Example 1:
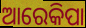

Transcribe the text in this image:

ଆରେକିପା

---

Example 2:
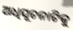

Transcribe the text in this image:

ଅଧିସୂଚନାଟିକୁ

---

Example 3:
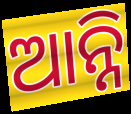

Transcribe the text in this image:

ଆନ୍ନି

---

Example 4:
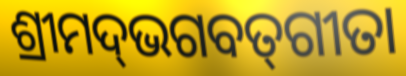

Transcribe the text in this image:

ଶ୍ରୀମଦ୍‌ଭଗବତ୍‌ଗୀତା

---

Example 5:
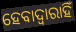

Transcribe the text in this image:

ହେବାଦ୍ଵାରାହିଁ